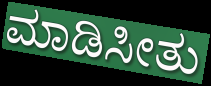
ಮಾಡಿಸೀತು